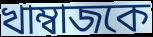
খাম্বাজকে